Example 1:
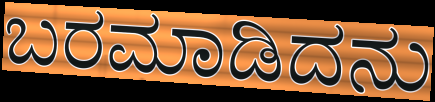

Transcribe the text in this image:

ಬರಮಾಡಿದನು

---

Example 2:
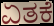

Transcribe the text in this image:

ಏತಕೆ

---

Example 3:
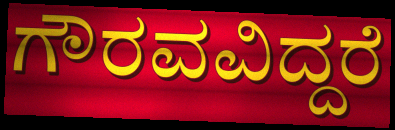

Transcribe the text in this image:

ಗೌರವವಿದ್ದರೆ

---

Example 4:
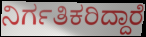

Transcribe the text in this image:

ನಿರ್ಗತಿಕರಿದ್ದಾರೆ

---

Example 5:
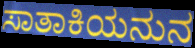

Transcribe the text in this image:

ಸಾತಾಕಿಯನುನ